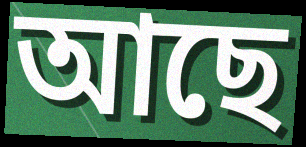
আছে